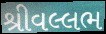
શ્રીવલ્લભ